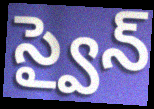
స్వైన్